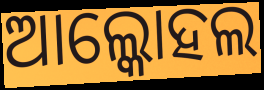
ଆଲ୍କୋହଲ